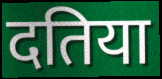
दतिया